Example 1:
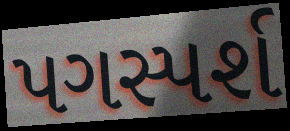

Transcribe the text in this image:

પગસ્પર્શ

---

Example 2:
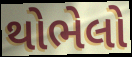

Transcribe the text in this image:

થોભેલો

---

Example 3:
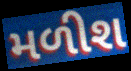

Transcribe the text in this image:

મળીશ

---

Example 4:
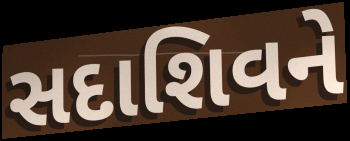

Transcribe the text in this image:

સદાશિવને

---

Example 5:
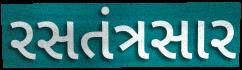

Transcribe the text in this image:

રસતંત્રસાર